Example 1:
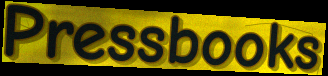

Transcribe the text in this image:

Pressbooks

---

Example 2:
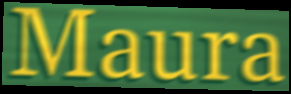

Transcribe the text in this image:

Maura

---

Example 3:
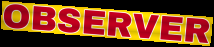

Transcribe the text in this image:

OBSERVER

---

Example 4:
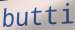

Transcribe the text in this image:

butti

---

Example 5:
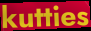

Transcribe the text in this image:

kutties